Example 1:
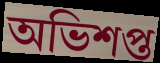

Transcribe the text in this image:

অভিশপ্ত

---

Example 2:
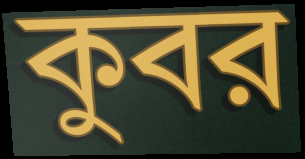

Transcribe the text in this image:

কুবর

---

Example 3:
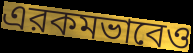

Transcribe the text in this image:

এরকমভাবেও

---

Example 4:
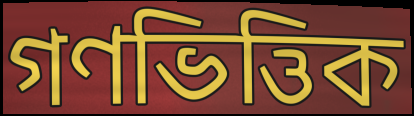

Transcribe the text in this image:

গণভিত্তিক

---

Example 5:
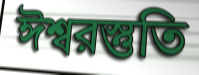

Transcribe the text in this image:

ঈশ্বরস্তুতি